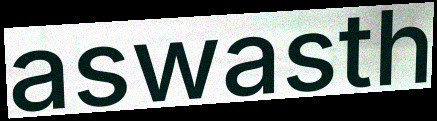
aswasth